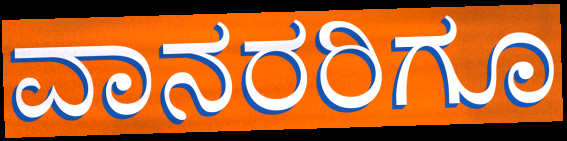
ವಾನರರಿಗೂ